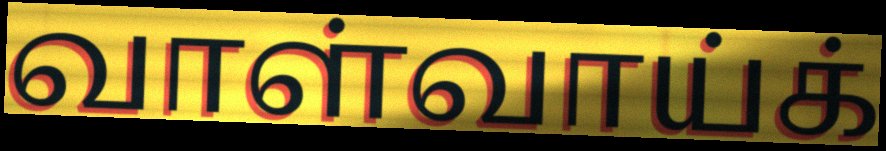
வாள்வாய்க்